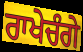
ਰਾਖੇਚੰਗੇ